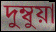
দুম্বুয়া